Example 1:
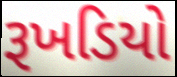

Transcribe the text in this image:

રૂખડિયો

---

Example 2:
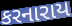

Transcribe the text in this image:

કરનારાય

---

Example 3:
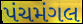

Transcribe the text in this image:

પંચમંગલ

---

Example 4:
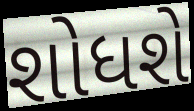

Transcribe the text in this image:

શોધશે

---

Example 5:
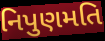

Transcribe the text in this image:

નિપુણમતિ